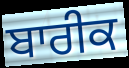
ਬਾਰੀਕ